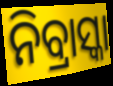
ନିବ୍ରାସ୍କା